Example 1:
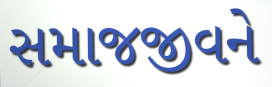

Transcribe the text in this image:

સમાજજીવને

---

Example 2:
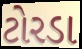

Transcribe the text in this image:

ટોરડા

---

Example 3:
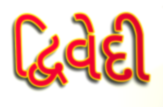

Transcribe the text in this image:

દ્વિવેદી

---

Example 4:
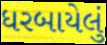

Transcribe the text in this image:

ધરબાયેલું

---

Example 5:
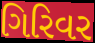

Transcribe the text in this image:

ગિરિવર